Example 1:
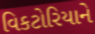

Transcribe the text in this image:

વિકટોરિયાને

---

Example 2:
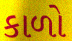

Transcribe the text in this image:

કાળો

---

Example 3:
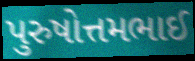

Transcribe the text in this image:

પુરુષોત્તમભાઈ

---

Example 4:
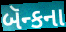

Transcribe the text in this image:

બૅન્કના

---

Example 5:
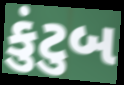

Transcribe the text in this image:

કુંટુબ